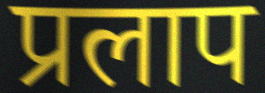
प्रलाप